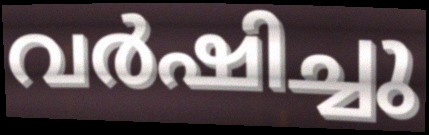
വർഷിച്ചു